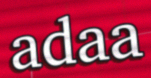
adaa